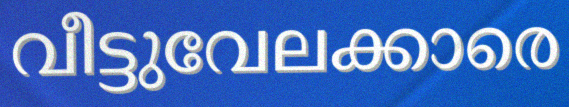
വീട്ടുവേലക്കാരെ